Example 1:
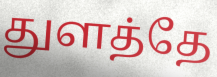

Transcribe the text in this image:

துளத்தே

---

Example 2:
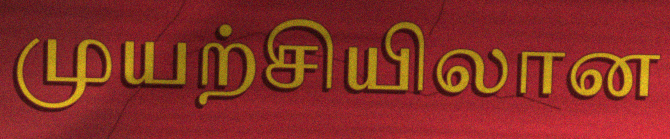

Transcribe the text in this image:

முயற்சியிலான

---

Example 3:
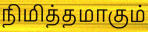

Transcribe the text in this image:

நிமித்தமாகும்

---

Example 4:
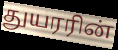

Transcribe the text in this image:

துயரரின்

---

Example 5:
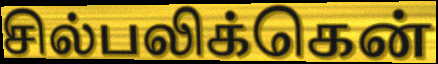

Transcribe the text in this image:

சில்பலிக்கென்